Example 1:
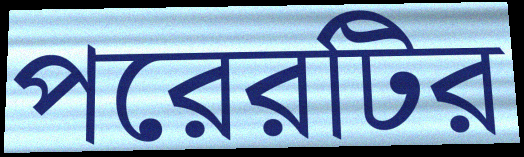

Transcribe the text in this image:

পরেরটির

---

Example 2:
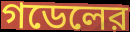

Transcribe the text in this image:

গডেলের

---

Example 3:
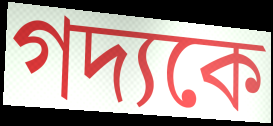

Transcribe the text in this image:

গদ্যকে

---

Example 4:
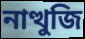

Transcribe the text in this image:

নাত্থুজি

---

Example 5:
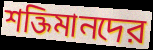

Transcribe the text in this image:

শক্তিমানদের